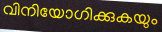
വിനിയോഗിക്കുകയും